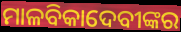
ମାଳବିକାଦେବୀଙ୍କର